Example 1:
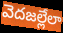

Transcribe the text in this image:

వెదజల్లేలా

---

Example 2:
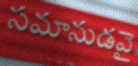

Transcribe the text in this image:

సమానుడవై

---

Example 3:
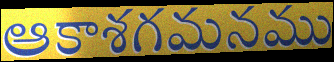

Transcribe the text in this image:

ఆకాశగమనము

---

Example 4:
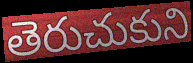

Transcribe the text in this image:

తెరుచుకుని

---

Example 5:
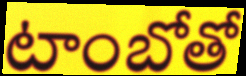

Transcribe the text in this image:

టాంబోతో